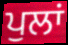
ਪੁਲਾਂ